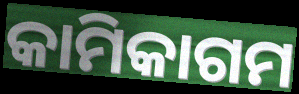
କାମିକାଗମ